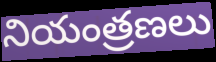
నియంత్రణలు